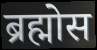
ब्रह्मोस